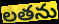
లతను